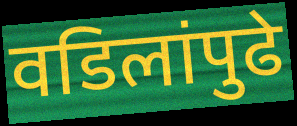
वडिलांपुढे